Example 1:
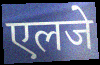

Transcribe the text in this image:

एलजे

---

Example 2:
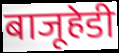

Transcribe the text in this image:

बाजूहेडी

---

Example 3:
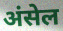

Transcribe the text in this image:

अंसेल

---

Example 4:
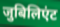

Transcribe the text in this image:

जुबिलिएंट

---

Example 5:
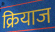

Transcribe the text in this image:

क्रियाज